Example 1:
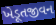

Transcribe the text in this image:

ખેડૂતજીવન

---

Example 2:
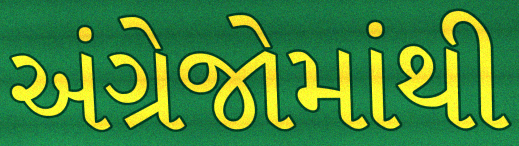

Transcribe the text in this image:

અંગ્રેજોમાંથી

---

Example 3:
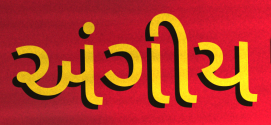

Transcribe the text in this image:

અંગીય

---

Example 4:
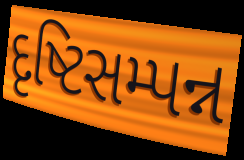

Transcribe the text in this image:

દૃષ્ટિસમ્પન્ન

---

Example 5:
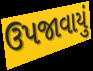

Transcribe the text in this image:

ઉપજાવાયું